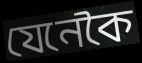
যেনেকৈ